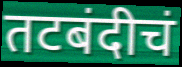
तटबंदीचं